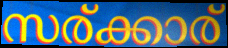
സര്ക്കാര്